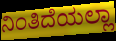
ನಿಂತಿದೆಯಲ್ಲಾ